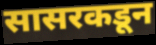
सासरकडून